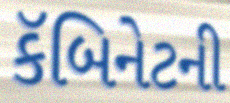
કૅબિનેટની